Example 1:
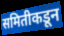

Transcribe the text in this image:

समितीकडून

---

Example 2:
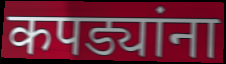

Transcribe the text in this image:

कपड्यांना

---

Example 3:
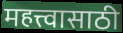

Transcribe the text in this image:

महत्त्वासाठी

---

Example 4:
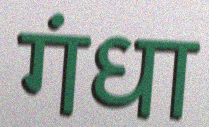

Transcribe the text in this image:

गंधा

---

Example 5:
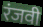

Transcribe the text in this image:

रंजवी